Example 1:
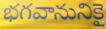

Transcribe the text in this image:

భగవానునికై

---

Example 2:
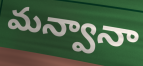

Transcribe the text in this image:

మన్వానా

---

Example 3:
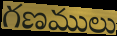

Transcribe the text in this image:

గణములు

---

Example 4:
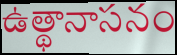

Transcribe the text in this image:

ఉత్థానాసనం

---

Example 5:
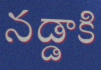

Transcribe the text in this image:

నడ్డాకి